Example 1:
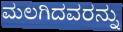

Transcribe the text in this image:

ಮಲಗಿದವರನ್ನು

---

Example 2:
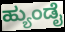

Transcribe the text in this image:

ಹ್ಯುಂಡೈ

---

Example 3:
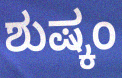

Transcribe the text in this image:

ಶುಷ್ಕಂ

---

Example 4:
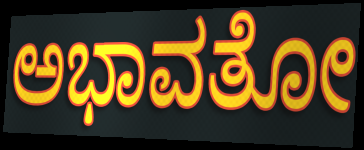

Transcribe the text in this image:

ಅಭಾವತೋ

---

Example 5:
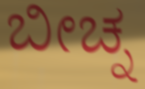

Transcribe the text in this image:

ಬೀಚ್ನ